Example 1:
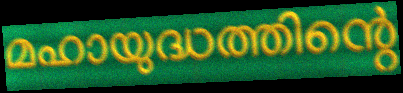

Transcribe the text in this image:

മഹായുദ്ധത്തിന്റെ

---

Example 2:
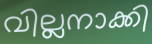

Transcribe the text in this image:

വില്ലനാക്കി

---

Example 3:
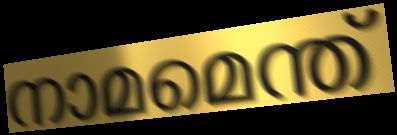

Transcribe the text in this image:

നാമമെന്ത്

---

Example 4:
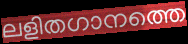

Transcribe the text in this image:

ലളിതഗാനത്തെ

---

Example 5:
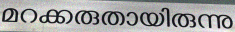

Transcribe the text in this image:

മറക്കരുതായിരുന്നു